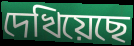
দেখিয়েছে